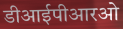
डीआईपीआरओ